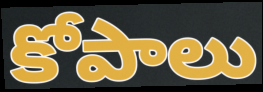
కోపాలు